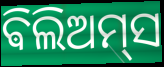
ଵିଲିଅମ୍‌ସ